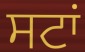
ਸਟਾਂ